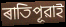
ৰাতিপূৱাই